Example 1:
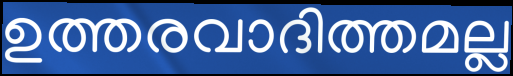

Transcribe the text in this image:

ഉത്തരവാദിത്തമല്ല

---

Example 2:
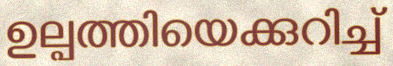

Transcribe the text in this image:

ഉല്പത്തിയെക്കുറിച്ച്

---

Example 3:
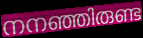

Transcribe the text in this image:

നനഞ്ഞിരുണ്ട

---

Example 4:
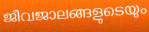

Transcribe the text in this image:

ജീവജാലങ്ങളുടെയും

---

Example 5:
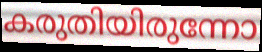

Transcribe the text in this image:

കരുതിയിരുന്നോ